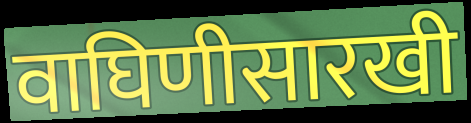
वाघिणीसारखी